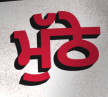
ਮੁੱਠੇ